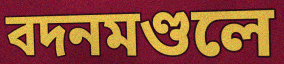
বদনমণ্ডলে